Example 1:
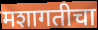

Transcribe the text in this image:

मशागतीचा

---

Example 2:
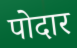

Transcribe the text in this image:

पोदार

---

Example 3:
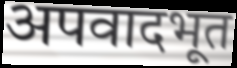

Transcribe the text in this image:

अपवादभूत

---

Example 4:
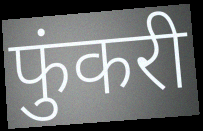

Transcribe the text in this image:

फुंकरी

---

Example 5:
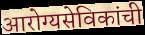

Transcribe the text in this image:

आरोग्यसेविकांची